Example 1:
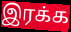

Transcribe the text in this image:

இரக்க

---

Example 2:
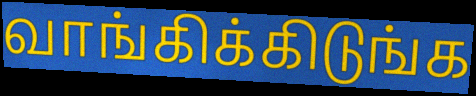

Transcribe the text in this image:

வாங்கிக்கிடுங்க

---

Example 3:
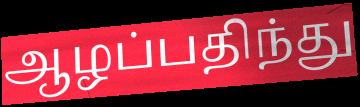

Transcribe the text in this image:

ஆழப்பதிந்து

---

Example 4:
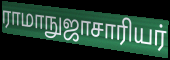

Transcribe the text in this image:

ராமாநுஜாசாரியர்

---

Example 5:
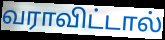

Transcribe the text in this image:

வராவிட்டால்